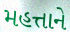
મહત્તાને